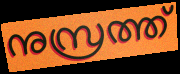
നുസ്രത്ത്